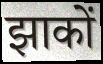
झाकों